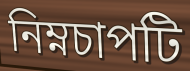
নিম্নচাপটি